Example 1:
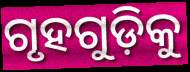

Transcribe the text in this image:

ଗୃହଗୁଡ଼ିକୁ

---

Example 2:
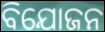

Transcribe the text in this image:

ବିଯୋଜନ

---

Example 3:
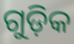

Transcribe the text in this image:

ଗୁଡ଼ିକ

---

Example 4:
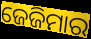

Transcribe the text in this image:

ଜେଜିମାର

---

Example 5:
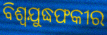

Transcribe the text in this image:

ବିଶ୍ୱଯୁଦ୍ଧଫକୀର